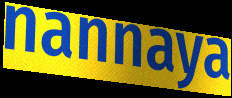
nannaya